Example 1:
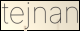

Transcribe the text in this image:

tejnan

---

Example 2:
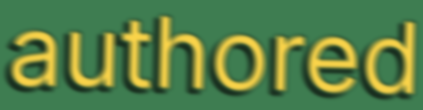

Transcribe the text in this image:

authored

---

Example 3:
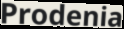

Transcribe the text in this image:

Prodenia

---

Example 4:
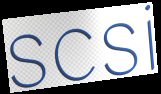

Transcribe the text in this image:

scsi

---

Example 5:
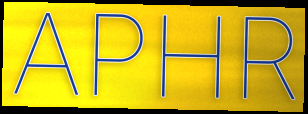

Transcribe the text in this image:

APHR